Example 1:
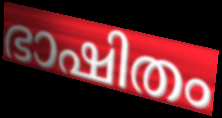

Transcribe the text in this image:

ഭാഷിതം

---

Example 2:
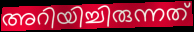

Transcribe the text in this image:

അറിയിച്ചിരുന്നത്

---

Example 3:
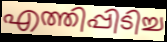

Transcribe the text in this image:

എത്തിപ്പിടിച്ച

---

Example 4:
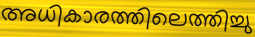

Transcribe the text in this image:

അധികാരത്തിലെത്തിച്ചു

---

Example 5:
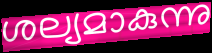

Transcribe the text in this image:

ശല്യമാകുന്നു